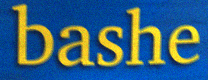
bashe